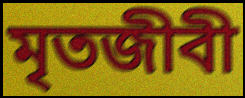
মৃতজীবী